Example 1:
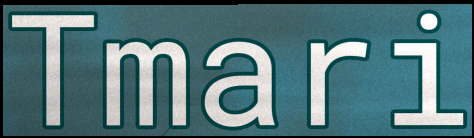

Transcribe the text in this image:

Tmari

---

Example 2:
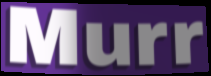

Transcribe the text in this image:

Murr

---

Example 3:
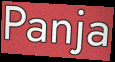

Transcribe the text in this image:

Panja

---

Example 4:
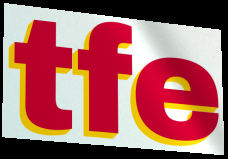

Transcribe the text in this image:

tfe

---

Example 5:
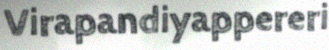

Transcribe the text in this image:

Virapandiyappereri